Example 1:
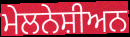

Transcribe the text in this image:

ਮੇਲਨੇਸ਼ੀਅਨ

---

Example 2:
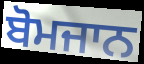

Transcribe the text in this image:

ਬੋਮਜਾਨ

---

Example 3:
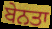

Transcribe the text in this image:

ਬੇਨਤਾ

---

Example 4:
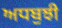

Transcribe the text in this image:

ਅਧਬੁਝੀ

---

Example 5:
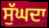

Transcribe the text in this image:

ਸੁੱਘਦਾ